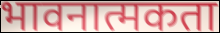
भावनात्मकता